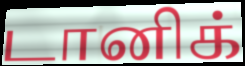
டானிக்